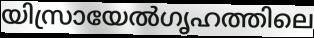
യിസ്രായേൽഗൃഹത്തിലെ